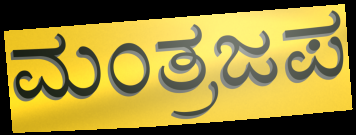
ಮಂತ್ರಜಪ